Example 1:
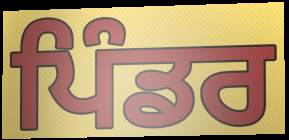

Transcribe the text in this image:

ਪਿੰਡਰ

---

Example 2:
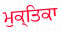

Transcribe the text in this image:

ਮੁਕ੍ਤਿਕਾ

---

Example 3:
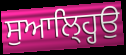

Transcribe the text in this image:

ਸੁਆਲ੍ਹ੍ਹਿਉ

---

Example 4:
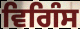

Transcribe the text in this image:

ਵਿਗਿੰਸ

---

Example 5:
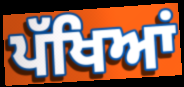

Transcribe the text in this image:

ਪੱਖਿਆਂ